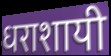
धराशायी